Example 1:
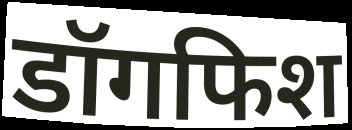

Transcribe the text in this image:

डॉगफिश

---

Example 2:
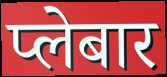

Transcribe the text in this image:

प्लेबार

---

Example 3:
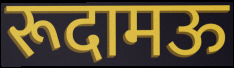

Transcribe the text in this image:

रूदामऊ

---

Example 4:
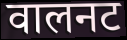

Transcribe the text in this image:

वालनट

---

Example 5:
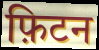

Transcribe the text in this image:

फ़िटन